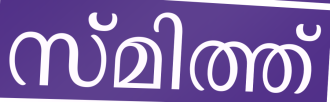
സ്മിത്ത്